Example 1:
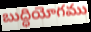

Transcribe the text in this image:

బుద్ధియోగము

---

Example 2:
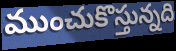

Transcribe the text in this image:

ముంచుకొస్తున్నది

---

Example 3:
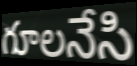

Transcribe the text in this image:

గూలనేసి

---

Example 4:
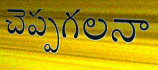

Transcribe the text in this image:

చెప్పగలనా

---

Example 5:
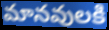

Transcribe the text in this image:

మానవులకి